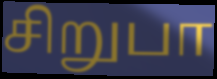
சிறுபா